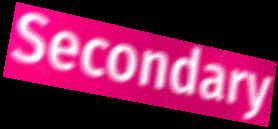
Secondary